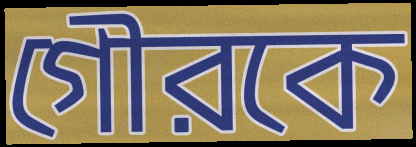
গৌরকে